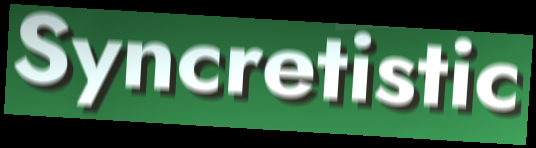
Syncretistic